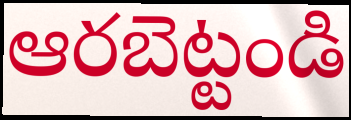
ఆరబెట్టండి